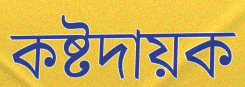
কষ্টদায়ক